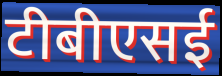
टीबीएसई